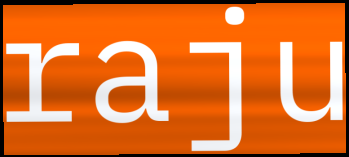
raju